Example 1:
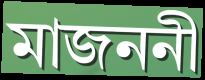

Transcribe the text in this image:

মাজননী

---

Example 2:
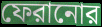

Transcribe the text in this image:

ফেরানোর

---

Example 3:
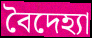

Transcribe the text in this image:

বৈদেহ্যা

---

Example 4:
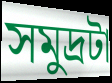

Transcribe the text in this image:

সমুদ্রটা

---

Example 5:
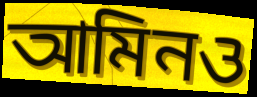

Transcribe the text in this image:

আমিনও